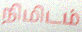
நிமிடம்